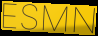
ESMN